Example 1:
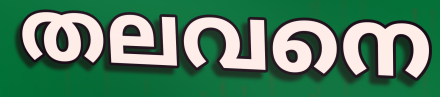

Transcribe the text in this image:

തലവനെ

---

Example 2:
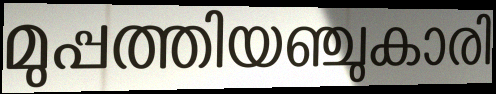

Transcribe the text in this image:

മുപ്പത്തിയഞ്ചുകാരി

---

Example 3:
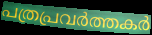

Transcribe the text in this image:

പത്രപ്രവർത്തകർ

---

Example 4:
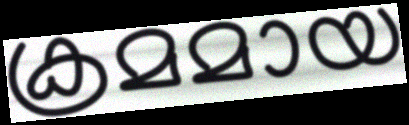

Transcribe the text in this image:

ക്രമമായ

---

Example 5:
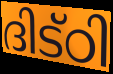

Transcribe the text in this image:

ദിട്ഠി